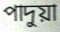
পাদুয়া